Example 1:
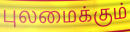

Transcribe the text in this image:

புலமைக்கும்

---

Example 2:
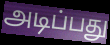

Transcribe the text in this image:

அடிப்பது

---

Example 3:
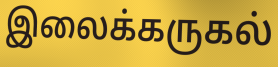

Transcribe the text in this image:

இலைக்கருகல்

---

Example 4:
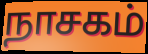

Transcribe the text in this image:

நாசகம்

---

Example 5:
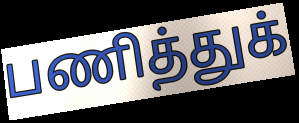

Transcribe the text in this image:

பணித்துக்